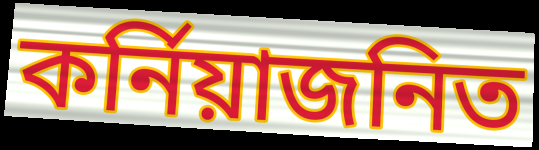
কর্নিয়াজনিত